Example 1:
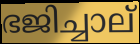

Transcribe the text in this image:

ഭജിച്ചാല്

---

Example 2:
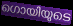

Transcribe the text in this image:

ഗൊയിയുടെ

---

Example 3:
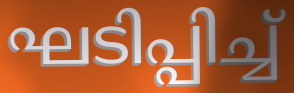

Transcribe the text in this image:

ഘടിപ്പിച്ച്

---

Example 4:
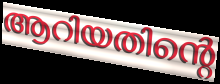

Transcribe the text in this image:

ആറിയതിന്റെ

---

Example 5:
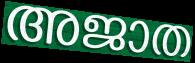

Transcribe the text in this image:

അജാത